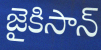
జైకిసాన్